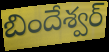
బిందేశ్వర్